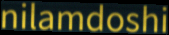
nilamdoshi